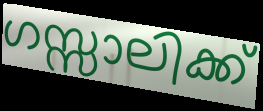
ഗസ്സാലിക്ക്